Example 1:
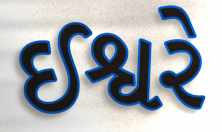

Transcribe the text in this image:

ઈશ્વરે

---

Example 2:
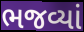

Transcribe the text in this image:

ભજવ્યાં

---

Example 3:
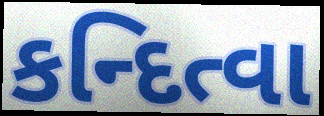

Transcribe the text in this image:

કન્દિત્વા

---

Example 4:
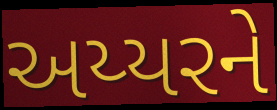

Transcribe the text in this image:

અય્યરને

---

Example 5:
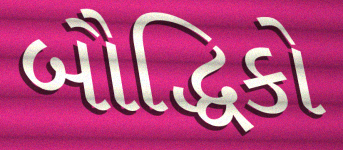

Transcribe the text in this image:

બૌદ્ધિકો